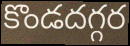
కొండదగ్గర